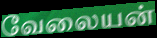
வேலையன்